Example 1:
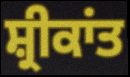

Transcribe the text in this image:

ਸ਼੍ਰੀਕਾਂਤ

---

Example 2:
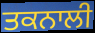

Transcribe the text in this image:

ਤਕਨਾਲੀ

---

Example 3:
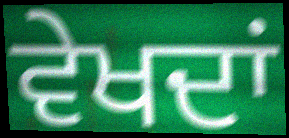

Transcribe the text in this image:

ਵੇਖਦਾਂ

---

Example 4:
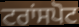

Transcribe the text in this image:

ਟਰਾਂਸਪੋਟ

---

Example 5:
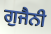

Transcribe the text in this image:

ਗੁਜੈਨੀ